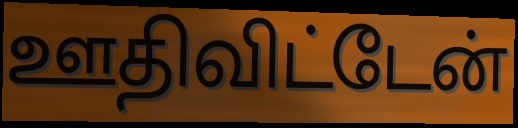
ஊதிவிட்டேன்